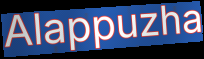
Alappuzha